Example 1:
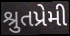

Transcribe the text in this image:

શ્રુતપ્રેમી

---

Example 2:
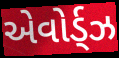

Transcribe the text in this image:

એવોર્ડ્ઝ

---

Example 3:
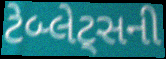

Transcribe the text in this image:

ટેબ્લેટ્સની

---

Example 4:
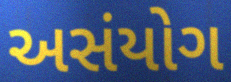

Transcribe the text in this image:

અસંયોગ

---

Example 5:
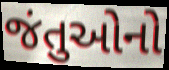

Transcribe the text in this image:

જંતુઓનો